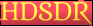
HDSDR